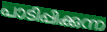
പാടിപ്പിക്കുന്ന